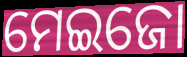
ମେଇଜୋ